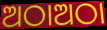
ଅଠାଅଠା